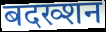
बदख्शन